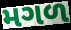
મગળ